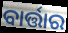
ବାର୍ତ୍ତାର